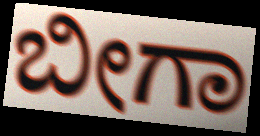
ಬೀಗಾ